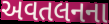
અવતલનના